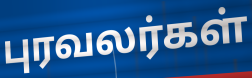
புரவலர்கள்